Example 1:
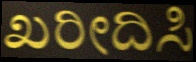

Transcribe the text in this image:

ಖರೀದಿಸಿ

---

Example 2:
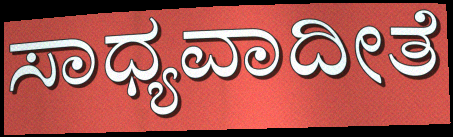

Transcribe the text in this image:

ಸಾಧ್ಯವಾದೀತೆ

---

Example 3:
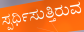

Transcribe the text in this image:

ಸ್ಪರ್ಧಿಸುತ್ತಿರುವ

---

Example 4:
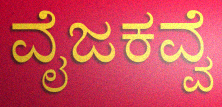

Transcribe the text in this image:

ವೈಜಕವ್ವೆ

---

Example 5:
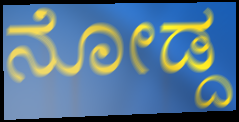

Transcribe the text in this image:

ನೋಡ್ದ